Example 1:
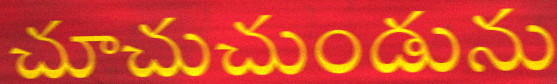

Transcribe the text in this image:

చూచుచుండును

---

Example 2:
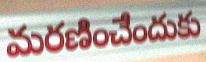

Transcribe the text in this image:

మరణించేందుకు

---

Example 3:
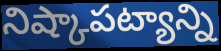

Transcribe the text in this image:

నిష్కాపట్యాన్ని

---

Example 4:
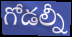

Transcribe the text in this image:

గోడల్నీ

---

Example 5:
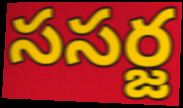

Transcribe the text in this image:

ససర్జ